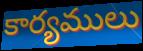
కార్యములు